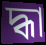
দ্ধা